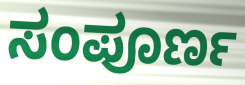
ಸಂಪೂರ್ಣ